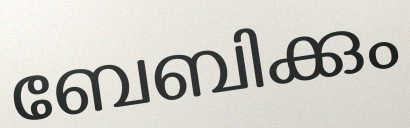
ബേബിക്കും